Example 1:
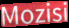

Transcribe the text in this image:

Mozisi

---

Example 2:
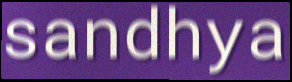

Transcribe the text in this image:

sandhya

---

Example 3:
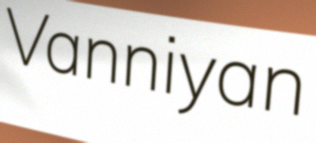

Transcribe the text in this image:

Vanniyan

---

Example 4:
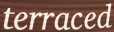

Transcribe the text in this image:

terraced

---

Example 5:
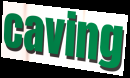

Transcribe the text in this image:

caving